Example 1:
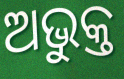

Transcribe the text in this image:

ଅଭୁକ୍ତ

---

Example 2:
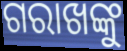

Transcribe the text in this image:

ଗରାଖଙ୍କୁ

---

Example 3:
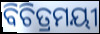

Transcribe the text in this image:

ବିଚିତ୍ରମୟୀ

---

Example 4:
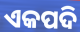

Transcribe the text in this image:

ଏକପଦି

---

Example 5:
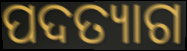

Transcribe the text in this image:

ପଦତ୍ୟାଗ